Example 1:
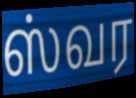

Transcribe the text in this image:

ஸ்வர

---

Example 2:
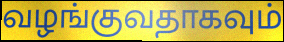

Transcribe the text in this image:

வழங்குவதாகவும்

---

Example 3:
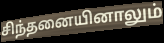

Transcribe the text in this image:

சிந்தனையினாலும்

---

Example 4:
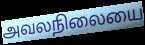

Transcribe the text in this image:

அவலநிலையை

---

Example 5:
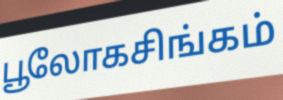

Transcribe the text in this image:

பூலோகசிங்கம்